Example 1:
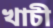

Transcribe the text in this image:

খাচী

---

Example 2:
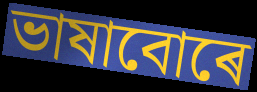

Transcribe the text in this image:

ভাষাবোৰে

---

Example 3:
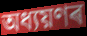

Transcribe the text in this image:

অধ্যয়ণৰ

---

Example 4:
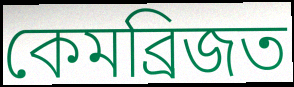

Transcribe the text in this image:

কেমব্ৰিজত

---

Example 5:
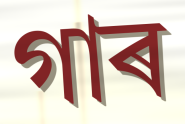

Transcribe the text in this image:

গাৰ